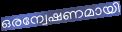
ഒരന്വേഷണമായി